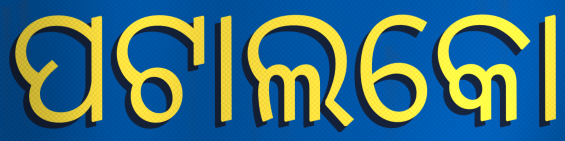
ପଟାଲକୋ